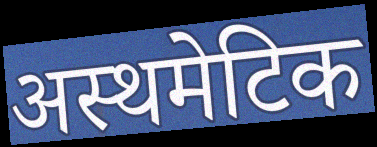
अस्थमेटिक